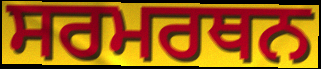
ਸਰਮਰਥਨ